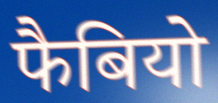
फैबियो